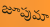
జూపుమా